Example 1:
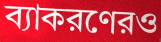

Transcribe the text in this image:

ব্যাকরণেরও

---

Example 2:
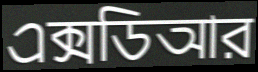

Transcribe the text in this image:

এক্সডিআর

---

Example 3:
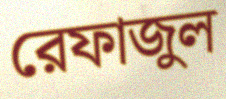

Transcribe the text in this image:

রেফাজুল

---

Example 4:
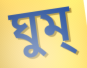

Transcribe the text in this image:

ঘুম্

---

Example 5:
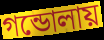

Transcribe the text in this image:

গন্ডোলায়